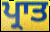
ਪ੍ਰਾਤ